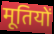
मूतियों